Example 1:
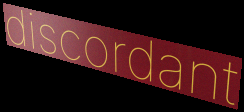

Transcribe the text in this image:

discordant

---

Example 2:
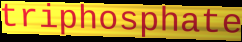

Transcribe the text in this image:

triphosphate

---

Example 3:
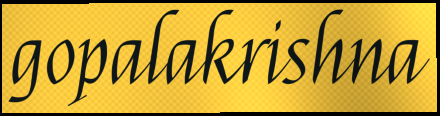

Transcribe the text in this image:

gopalakrishna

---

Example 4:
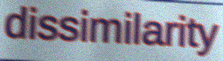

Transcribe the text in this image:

dissimilarity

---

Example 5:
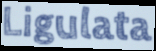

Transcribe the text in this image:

Ligulata